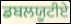
ਡਬਲਯੂਟੀਏ